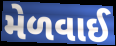
મેળવાઈ